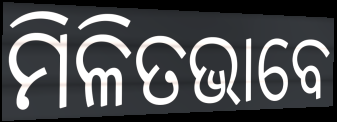
ମିଳିତଭାବେ